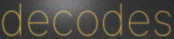
decodes